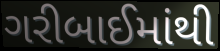
ગરીબાઈમાંથી